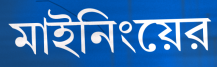
মাইনিংয়ের